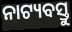
ନାଟ୍ୟବସ୍ତୁ